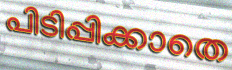
പിടിപ്പിക്കാതെ